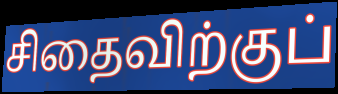
சிதைவிற்குப்